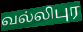
வல்லிபுர